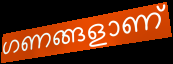
ഗണങ്ങളാണ്